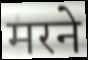
मरने